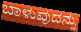
ಬಾಳುವುದನ್ನು